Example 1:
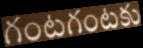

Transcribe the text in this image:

గంటగంటకు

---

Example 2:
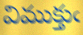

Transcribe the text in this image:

విముక్తుఁ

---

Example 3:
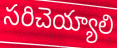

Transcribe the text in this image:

సరిచెయ్యాలి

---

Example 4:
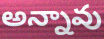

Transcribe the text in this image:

అన్నావు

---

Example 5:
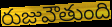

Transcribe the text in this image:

రుజువౌతుంది